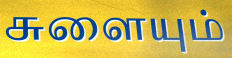
சுளையும்